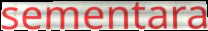
sementara